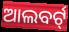
ଆଲବର୍ଟ୍